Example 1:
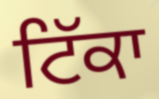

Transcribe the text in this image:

ਟਿੱਕਾ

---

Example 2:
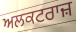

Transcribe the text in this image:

ਅਲਕਟਰਾਜ਼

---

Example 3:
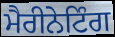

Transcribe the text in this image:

ਮੈਰੀਨੇਟਿੰਗ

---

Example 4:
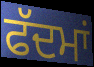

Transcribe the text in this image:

ਫੱਦਮਾਂ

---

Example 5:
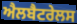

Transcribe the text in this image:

ਐਲਬੈਟਰੇਲਸ